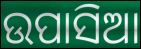
ଉପାସିଆ